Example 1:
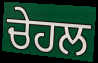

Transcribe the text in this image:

ਚੇਹਲ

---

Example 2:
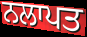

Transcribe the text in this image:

ਨਲਾਪਤ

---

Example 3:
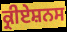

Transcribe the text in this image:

ਕ੍ਰੀਏਸ਼ਨਸ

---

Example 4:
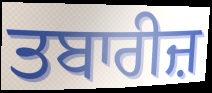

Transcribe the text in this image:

ਤਬਾਰੀਜ਼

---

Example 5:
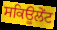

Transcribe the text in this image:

ਸਕਿਊਲੇਂਟ